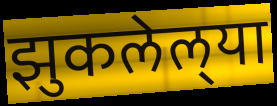
झुकलेल्या